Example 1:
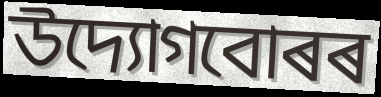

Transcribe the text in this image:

উদ্যোগবোৰৰ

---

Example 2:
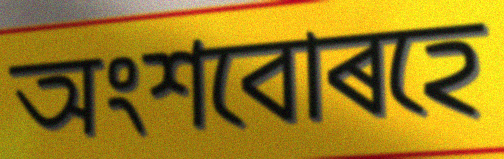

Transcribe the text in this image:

অংশবোৰহে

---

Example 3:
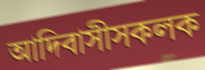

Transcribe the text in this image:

আদিবাসীসকলক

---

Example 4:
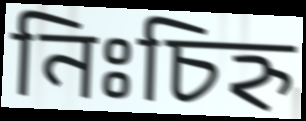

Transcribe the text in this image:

নিঃচিহ্ন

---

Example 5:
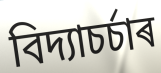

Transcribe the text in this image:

বিদ্যাচৰ্চাৰ